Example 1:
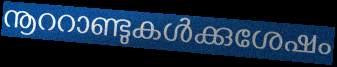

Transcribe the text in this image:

നൂററാണ്ടുകൾക്കുശേഷം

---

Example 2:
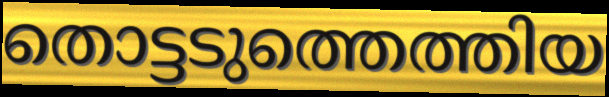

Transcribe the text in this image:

തൊട്ടടുത്തെത്തിയ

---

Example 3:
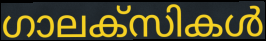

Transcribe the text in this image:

ഗാലക്സികൾ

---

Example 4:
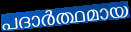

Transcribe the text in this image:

പദാർത്ഥമായ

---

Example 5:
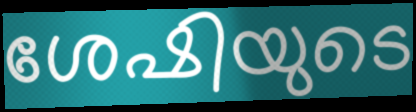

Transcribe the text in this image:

ശേഷിയുടെ